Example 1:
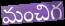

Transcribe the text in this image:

మంచిగ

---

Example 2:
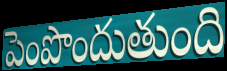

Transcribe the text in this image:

పెంపొందుతుంది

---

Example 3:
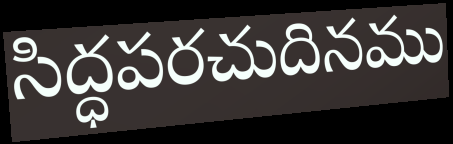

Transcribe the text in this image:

సిద్ధపరచుదినము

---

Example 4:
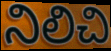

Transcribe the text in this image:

నిలిచి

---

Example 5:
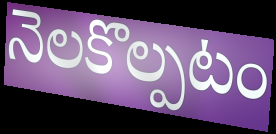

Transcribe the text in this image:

నెలకొల్పటం